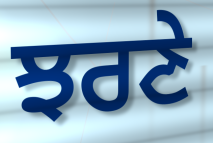
ਝਰਣੇ